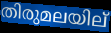
തിരുമലയില്